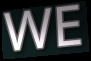
WE